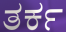
ತರ್ಕ